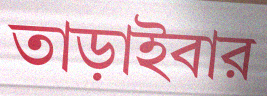
তাড়াইবার